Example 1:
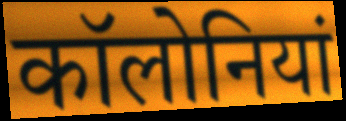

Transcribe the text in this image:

कॉलोनियां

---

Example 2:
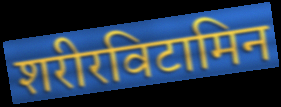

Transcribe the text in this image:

शरीरविटामिन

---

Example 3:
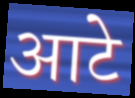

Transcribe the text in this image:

आटे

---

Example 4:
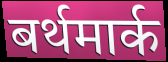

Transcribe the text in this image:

बर्थमार्क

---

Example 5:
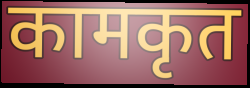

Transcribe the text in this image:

कामकृत